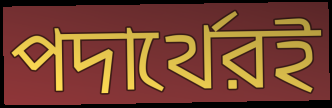
পদার্থেরই